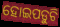
ହୋଇପଡୁଚି